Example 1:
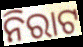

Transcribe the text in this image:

ନିରାଟ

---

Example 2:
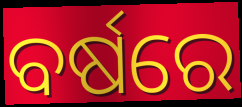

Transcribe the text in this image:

ବର୍ଷରେ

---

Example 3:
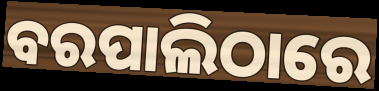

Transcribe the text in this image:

ବରପାଲିଠାରେ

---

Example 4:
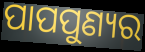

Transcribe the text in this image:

ପାପପୁଣ୍ୟର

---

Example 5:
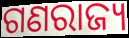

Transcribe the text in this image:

ଗଣରାଜ୍ୟ